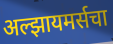
अल्झायमर्सचा